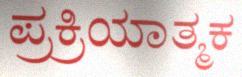
ಪ್ರಕ್ರಿಯಾತ್ಮಕ